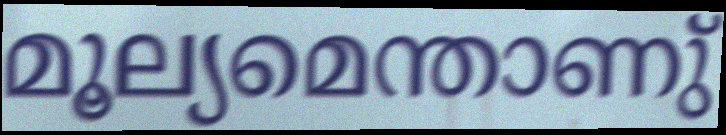
മൂല്യമെന്താണു്